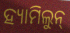
ହ୍ୟାମିଲୁନ୍